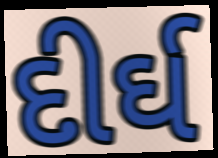
દીર્ઘ